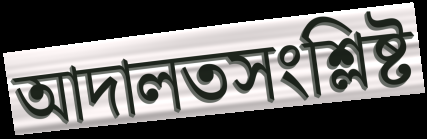
আদালতসংশ্লিষ্ট